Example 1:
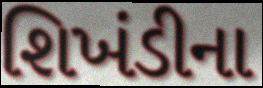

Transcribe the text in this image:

શિખંડીના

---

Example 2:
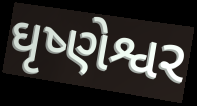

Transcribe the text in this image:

ઘૃષ્ણેશ્વર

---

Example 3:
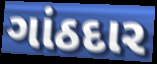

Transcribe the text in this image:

ગાંઠદાર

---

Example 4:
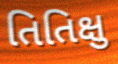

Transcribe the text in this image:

તિતિક્ષુ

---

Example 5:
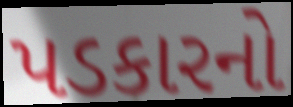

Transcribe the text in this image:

પડકારનો